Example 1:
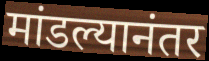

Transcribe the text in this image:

मांडल्यानंतर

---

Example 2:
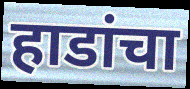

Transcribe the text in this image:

हाडांचा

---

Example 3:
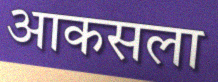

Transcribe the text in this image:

आकसला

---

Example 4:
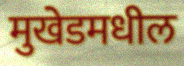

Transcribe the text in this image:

मुखेडमधील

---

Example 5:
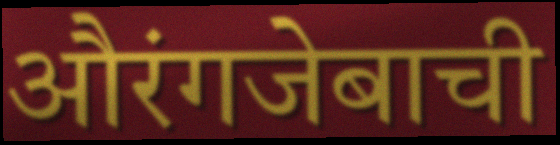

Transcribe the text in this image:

औरंगजेबाची